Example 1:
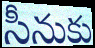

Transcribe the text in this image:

సీనుకు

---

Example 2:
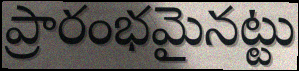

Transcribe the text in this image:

ప్రారంభమైనట్టు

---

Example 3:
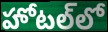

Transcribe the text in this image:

హోటల్‌లో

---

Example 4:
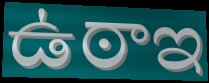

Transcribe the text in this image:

ఉఠాఇ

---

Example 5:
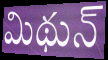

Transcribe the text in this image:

మిథున్